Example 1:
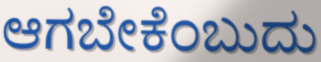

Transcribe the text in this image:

ಆಗಬೇಕೆಂಬುದು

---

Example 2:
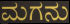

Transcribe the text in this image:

ಮಗನು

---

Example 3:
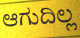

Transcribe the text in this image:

ಆಗುದಿಲ್ಲ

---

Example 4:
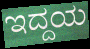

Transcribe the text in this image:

ಇದ್ದಯ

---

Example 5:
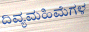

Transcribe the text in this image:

ದಿವ್ಯಮಹಿಮೆಗಳ